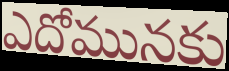
ఎదోమునకు